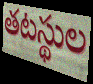
తటస్థుల